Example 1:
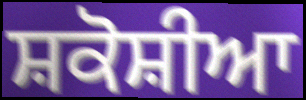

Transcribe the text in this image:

ਸ਼ਕੋਸ਼ੀਆ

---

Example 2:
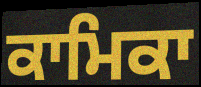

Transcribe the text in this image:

ਕਾਮਿਕਾ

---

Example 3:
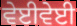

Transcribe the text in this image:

ਵੇਈਵੇਈ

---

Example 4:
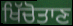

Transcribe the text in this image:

ਖਿੱਚੋਤਾਣ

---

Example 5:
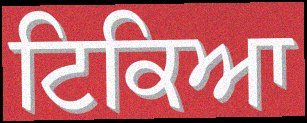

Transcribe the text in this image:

ਟਿਕਿਆ